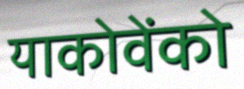
याकोवेंको